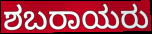
ಶಬರಾಯರು